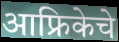
आफ्रिकेचे